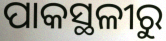
ପାକସ୍ଥଳୀରୁ